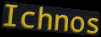
Ichnos